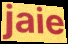
jaie